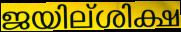
ജയില്ശിക്ഷ